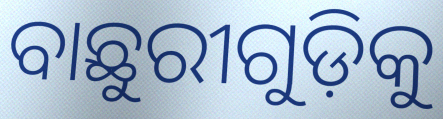
ବାଛୁରୀଗୁଡ଼ିକୁ